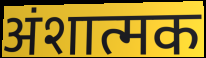
अंशात्मक